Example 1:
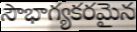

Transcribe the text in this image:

సౌభాగ్యకరమైన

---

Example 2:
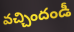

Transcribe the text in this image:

వచ్చిందండీ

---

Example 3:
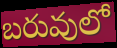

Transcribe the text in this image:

బరువులో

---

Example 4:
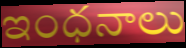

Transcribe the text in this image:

ఇంధనాలు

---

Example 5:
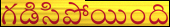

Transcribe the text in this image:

గడిసిపోయింది